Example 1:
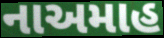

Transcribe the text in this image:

નાઅમાહ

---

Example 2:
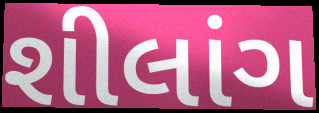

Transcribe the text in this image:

શીલાંગ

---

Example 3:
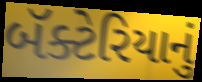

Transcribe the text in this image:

બૅક્ટેરિયાનું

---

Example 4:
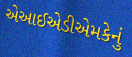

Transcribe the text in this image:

એઆઈએડીએમકેનું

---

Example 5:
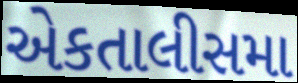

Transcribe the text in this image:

એકતાલીસમા